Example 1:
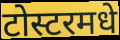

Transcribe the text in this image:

टोस्टरमधे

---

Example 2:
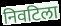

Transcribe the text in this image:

निवटिला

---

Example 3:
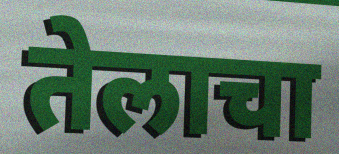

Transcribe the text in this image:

तेलाचा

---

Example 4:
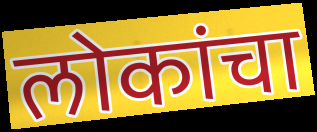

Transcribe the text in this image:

लोकांचा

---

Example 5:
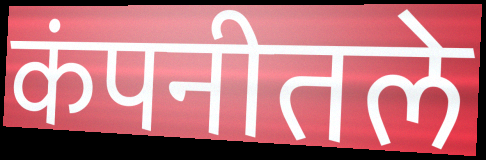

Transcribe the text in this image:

कंपनीतले